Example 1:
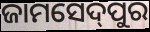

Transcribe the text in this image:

ଜାମସେଦ୍‌ପୁର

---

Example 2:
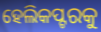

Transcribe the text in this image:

ହେଲିକପ୍ଟରକୁ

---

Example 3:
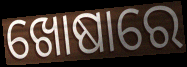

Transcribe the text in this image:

ଖୋଷାରେ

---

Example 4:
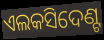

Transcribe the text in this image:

ଏଲକସିଦେଣ୍ଟ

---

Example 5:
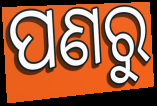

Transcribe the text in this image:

ପଣରୁ